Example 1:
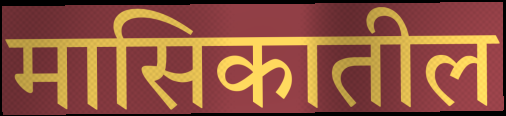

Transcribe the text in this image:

मासिकातील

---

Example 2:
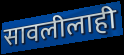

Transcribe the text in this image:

सावलीलाही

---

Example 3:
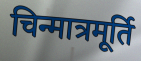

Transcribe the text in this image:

चिन्मात्रमूर्ति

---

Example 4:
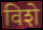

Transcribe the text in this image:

विशे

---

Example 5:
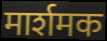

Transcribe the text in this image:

मार्शमक